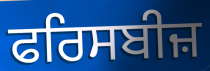
ਫਰਿਸਬੀਜ਼